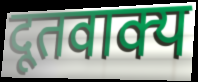
दूतवाक्य